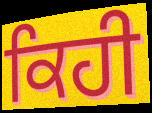
ਕਿਹੀ